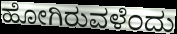
ಹೋಗಿರುವಳೆಂದು